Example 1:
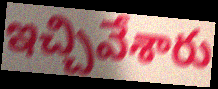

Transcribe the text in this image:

ఇచ్చివేశారు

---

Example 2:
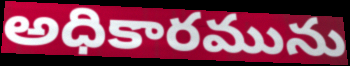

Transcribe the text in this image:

అధికారమును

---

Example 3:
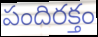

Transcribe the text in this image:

పందిరక్తం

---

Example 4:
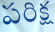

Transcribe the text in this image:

పరిక్ష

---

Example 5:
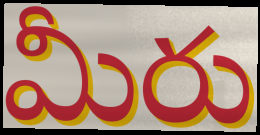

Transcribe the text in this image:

మీరు